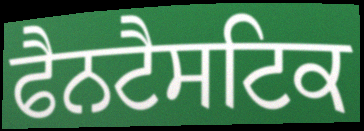
ਫੈਨਟੈਸਟਿਕ